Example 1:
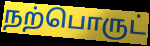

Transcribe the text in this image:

நற்பொருட்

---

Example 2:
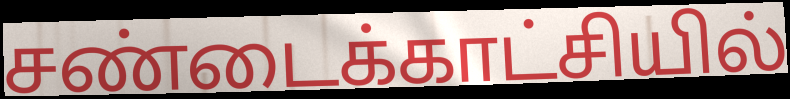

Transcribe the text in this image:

சண்டைக்காட்சியில்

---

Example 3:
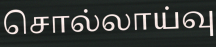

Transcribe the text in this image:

சொல்லாய்வு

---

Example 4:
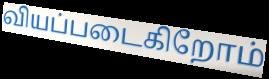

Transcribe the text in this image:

வியப்படைகிறோம்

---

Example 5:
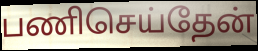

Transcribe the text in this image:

பணிசெய்தேன்